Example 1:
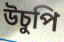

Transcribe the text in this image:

উচুপি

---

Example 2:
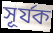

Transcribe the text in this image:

সূৰ্যক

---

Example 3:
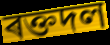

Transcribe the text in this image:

ৰক্তদল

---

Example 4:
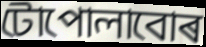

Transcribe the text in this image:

টোপোলাবোৰ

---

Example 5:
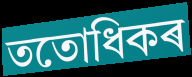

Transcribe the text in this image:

ততোধিকৰ